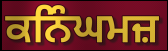
ਕਨਿੰਘਮਜ਼